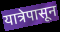
यात्रेपासून